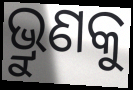
ଭ୍ରୁଣକୁ